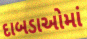
દાબડાઓમાં